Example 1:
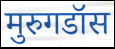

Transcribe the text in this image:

मुरुगडॉस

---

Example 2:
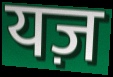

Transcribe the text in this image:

यज़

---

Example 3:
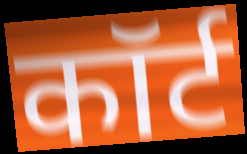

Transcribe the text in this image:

कॉर्ट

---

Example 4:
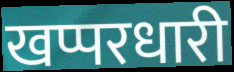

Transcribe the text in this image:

खप्परधारी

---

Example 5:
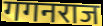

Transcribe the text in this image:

गगनराज